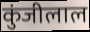
कुंजीलाल